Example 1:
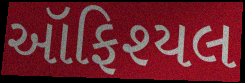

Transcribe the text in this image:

ઑફિશ્યલ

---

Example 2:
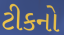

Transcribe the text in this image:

ટીકનો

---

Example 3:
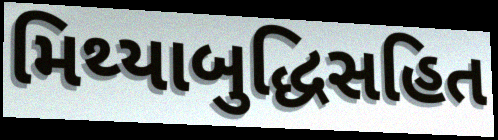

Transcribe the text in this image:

મિથ્યાબુદ્ધિસહિત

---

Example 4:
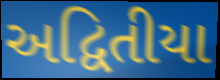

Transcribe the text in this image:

અદ્વિતીયા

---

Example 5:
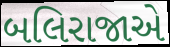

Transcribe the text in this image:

બલિરાજાએ